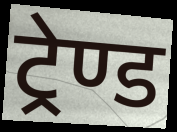
ट्रेण्ड